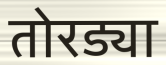
तोरड्या